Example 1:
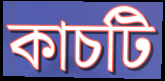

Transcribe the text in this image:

কাচটি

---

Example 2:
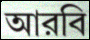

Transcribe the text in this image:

আরবি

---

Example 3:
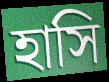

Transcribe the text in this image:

হাসি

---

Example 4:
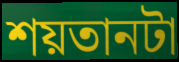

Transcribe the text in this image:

শয়তানটা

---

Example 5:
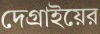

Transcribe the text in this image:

দেগ্রাইয়ের